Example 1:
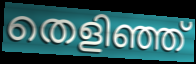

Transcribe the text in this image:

തെളിഞ്ഞ്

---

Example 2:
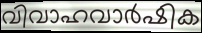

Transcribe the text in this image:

വിവാഹവാർഷിക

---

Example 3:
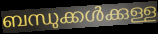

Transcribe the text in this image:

ബന്ധുക്കൾക്കുള്ള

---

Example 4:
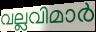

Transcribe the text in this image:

വല്ലവിമാർ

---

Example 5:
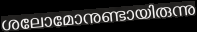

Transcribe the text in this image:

ശലോമോനുണ്ടായിരുന്നു